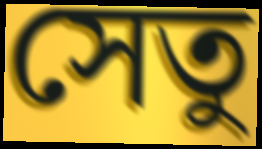
সেতু